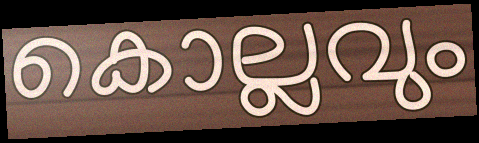
കൊല്ലവും